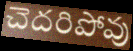
చెదరిపోవు